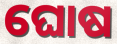
ଘୋଷ